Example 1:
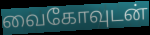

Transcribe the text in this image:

வைகோவுடன்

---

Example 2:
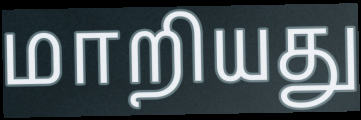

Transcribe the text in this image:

மாறியது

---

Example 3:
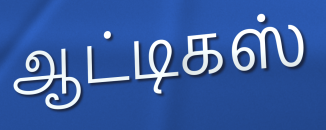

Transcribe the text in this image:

ஆட்டிகஸ்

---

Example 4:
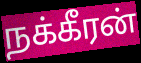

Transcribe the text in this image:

நக்கீரன்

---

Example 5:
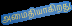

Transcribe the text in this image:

அமைதியாகிறது